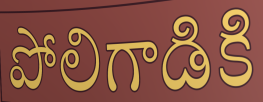
పోలిగాడికి